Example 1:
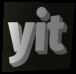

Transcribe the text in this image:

yit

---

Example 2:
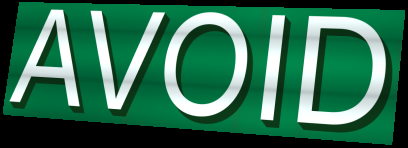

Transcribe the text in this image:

AVOID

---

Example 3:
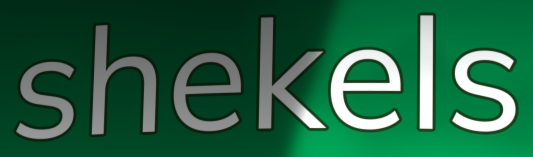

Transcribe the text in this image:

shekels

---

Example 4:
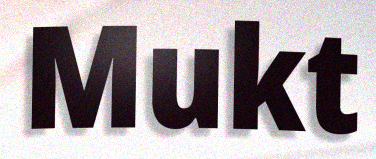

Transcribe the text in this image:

Mukt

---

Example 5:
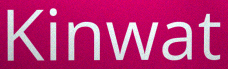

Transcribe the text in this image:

Kinwat